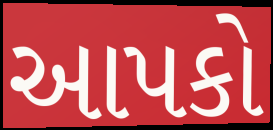
આપકો